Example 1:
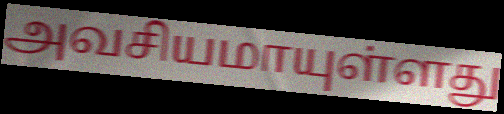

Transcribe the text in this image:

அவசியமாயுள்ளது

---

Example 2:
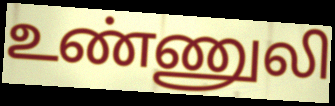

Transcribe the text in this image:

உண்ணுலி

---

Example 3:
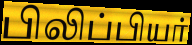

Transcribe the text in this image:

பிலிப்பியர்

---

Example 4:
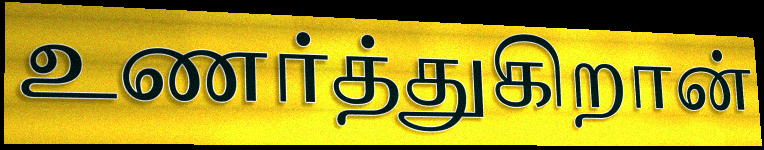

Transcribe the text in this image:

உணர்த்துகிறான்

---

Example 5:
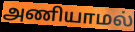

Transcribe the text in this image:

அணியாமல்